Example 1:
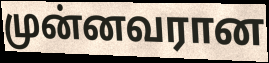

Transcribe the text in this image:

முன்னவரான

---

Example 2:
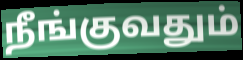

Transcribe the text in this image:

நீங்குவதும்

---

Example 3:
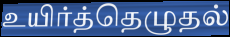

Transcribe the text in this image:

உயிர்த்தெழுதல்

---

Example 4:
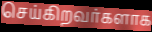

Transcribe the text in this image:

செய்கிறவர்களாக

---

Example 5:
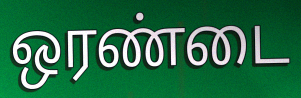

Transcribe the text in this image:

ஒரண்டை